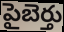
పైబెర్తు